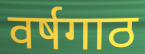
वर्षगाठ